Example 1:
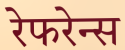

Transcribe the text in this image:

रेफरेन्स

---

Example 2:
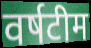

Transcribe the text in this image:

वर्षटीम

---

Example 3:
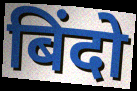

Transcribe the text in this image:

बिंदो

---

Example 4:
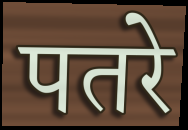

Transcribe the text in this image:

पतरे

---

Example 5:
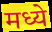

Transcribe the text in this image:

मध्ये